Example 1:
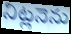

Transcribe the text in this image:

నిట్లనెను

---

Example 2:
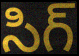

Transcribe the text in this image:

సిగ్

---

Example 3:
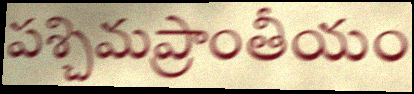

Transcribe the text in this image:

పశ్చిమప్రాంతీయం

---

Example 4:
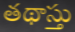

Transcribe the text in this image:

తథాస్తు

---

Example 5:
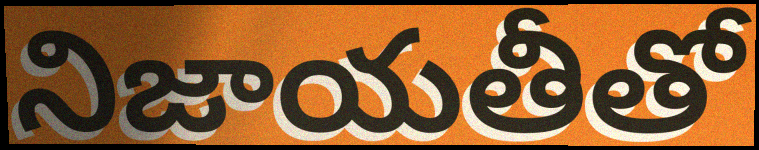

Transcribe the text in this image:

నిజాయతీతో